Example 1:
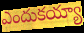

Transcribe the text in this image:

ఎందుకయ్యా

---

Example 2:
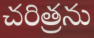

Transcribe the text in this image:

చరిత్రను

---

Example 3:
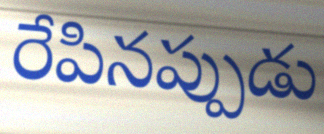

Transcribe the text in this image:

రేపినప్పుడు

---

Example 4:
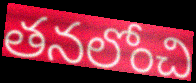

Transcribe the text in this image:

తనలోంచి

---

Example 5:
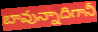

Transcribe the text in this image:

బావున్నాదిగానీ